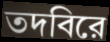
তদবিরে